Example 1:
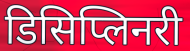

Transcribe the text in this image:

डिसिप्लिनरी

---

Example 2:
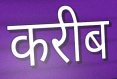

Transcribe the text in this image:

करीब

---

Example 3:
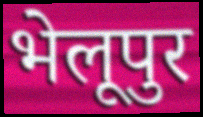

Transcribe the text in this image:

भेलूपुर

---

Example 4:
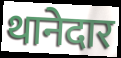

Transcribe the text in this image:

थानेदार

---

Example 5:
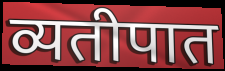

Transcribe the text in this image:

व्यतीपात